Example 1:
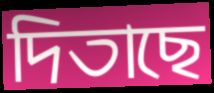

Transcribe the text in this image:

দিতাছে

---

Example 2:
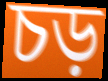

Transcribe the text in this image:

চড়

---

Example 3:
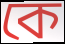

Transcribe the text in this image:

কে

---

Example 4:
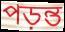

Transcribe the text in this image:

পড়ন্ত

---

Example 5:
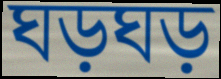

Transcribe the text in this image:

ঘড়ঘড়